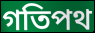
গতিপথ